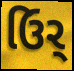
ઉિર્